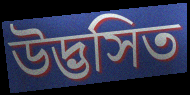
উদ্ভসিত